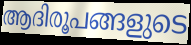
ആദിരൂപങ്ങളുടെ